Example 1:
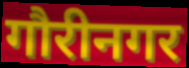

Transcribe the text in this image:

गौरीनगर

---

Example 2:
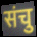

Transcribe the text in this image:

संचु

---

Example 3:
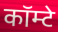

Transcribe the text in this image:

कॉम्टे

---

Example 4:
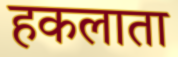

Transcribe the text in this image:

हकलाता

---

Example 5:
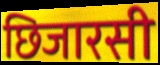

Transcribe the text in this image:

छिजारसी